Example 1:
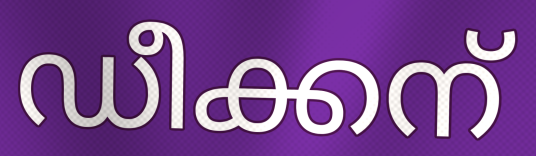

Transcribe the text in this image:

ഡീക്കന്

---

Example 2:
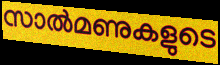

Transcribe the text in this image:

സാൽമണുകളുടെ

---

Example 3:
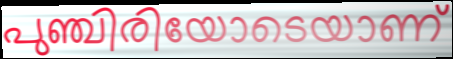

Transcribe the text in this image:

പുഞ്ചിരിയോടെയാണ്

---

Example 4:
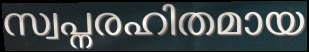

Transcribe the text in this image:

സ്വപ്നരഹിതമായ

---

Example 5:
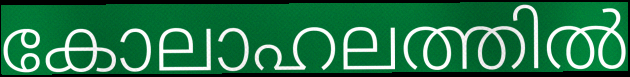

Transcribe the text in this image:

കോലാഹലത്തിൽ